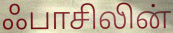
ஃபாசிலின்